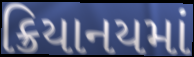
ક્રિયાનયમાં